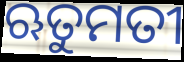
ଋତୁମତୀ